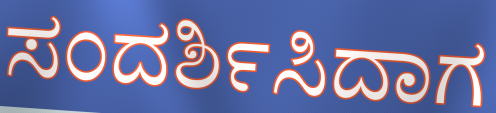
ಸಂದರ್ಶಿಸಿದಾಗ